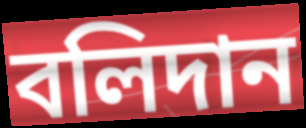
বলিদান